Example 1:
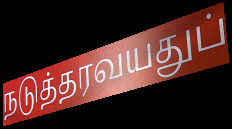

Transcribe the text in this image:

நடுத்தரவயதுப்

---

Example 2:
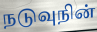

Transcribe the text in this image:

நடுவுநின்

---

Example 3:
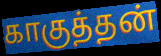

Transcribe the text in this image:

காகுத்தன்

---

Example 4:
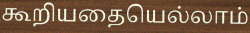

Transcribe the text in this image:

கூறியதையெல்லாம்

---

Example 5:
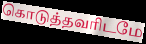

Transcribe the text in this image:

கொடுத்தவரிடமே